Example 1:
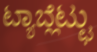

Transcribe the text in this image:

ಟ್ಯಾಬ್ಲೆಟ್ಟು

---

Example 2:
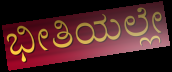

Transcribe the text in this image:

ಭೀತಿಯಲ್ಲೇ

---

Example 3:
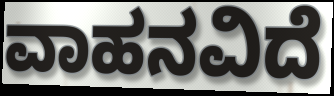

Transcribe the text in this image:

ವಾಹನವಿದೆ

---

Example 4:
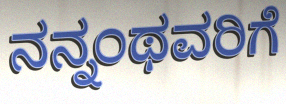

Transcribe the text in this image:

ನನ್ನಂಥವರಿಗೆ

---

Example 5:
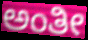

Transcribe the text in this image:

ಅಂತೀ